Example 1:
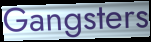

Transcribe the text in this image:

Gangsters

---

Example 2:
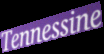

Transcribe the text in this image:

Tennessine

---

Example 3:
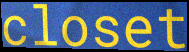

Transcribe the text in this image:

closet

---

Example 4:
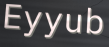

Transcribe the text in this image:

Eyyub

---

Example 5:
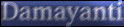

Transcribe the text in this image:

Damayanti